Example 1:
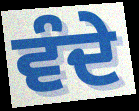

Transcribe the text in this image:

ਵੰਦੇ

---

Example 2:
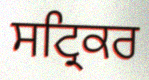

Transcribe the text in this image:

ਸਟ੍ਰਿਕਰ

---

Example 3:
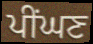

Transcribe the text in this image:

ਪੀਂਘਣ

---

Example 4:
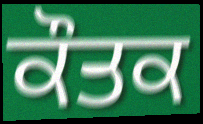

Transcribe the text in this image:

ਕੌਤਕ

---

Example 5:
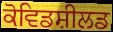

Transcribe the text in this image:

ਕੋਵਿਡਸ਼ੀਲਡ